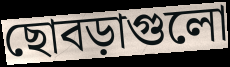
ছোবড়াগুলো